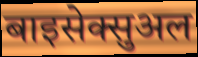
बाइसेक्सुअल